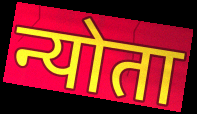
न्योता